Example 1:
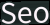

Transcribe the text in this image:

Seo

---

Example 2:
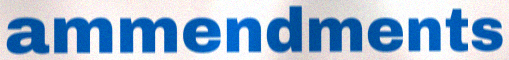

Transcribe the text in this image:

ammendments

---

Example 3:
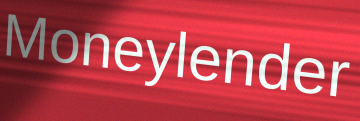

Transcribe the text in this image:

Moneylender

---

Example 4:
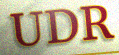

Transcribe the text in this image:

UDR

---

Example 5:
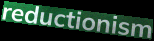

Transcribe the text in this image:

reductionism